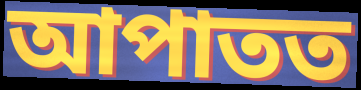
আপাতত